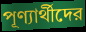
পূণ্যার্থীদের